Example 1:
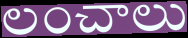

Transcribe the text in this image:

లంచాలు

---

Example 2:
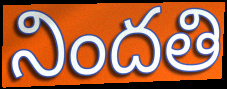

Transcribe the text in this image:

నిందతి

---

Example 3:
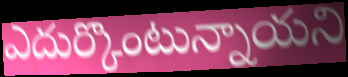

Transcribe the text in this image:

ఎదుర్కొంటున్నాయని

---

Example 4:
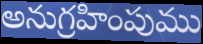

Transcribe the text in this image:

అనుగ్రహింపుము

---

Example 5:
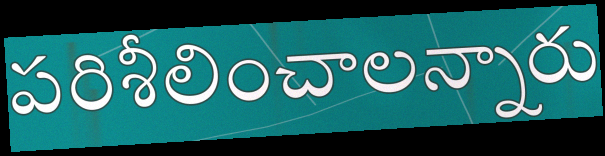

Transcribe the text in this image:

పరిశీలించాలన్నారు